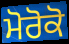
ਮੋਰੋਕੋ